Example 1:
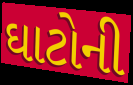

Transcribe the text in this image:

ઘાટોની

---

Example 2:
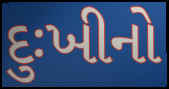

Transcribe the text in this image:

દુઃખીનો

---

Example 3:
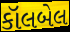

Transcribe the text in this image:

કૉલબેલ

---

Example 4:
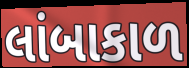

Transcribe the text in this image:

લાંબાકાળ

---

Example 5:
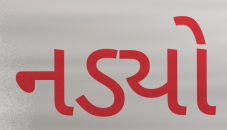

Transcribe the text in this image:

નડ્યો